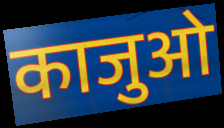
काजुओ